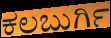
ಕಲಬುರ್ಗಿ